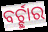
ବର୍ଚ୍ଛାର